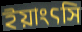
ইয়াংৎসি